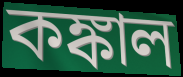
কঙ্কাল